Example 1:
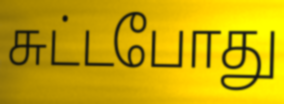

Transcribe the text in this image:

சுட்டபோது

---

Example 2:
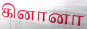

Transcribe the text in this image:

கினானா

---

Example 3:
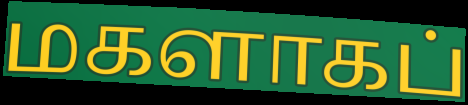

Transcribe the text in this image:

மகளாகப்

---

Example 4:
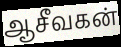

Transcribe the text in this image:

ஆசீவகன்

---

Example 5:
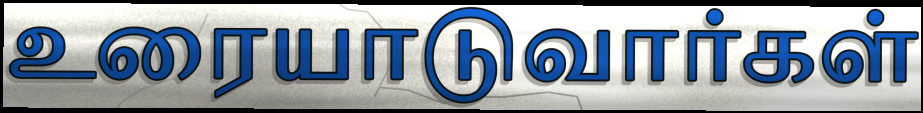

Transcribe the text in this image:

உரையாடுவார்கள்